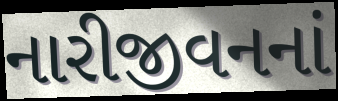
નારીજીવનનાં